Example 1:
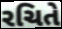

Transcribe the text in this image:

રચિતે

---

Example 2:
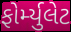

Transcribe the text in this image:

ફોર્મ્યુલેટ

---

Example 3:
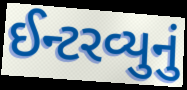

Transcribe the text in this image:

ઈન્ટરવ્યુનું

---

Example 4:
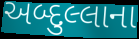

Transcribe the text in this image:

અબ્દુલ્લાના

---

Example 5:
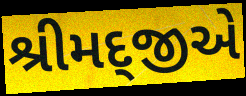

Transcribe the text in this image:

શ્રીમદ્જીએ